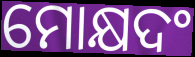
ମୋକ୍ଷଦଂ